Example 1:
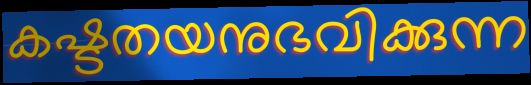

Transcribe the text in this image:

കഷ്ടതയനുഭവിക്കുന്ന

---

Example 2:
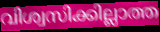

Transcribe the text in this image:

വിശ്വസിക്കില്ലാത്ത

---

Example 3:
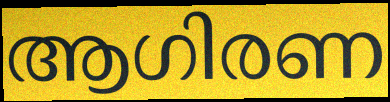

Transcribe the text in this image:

ആഗിരണ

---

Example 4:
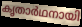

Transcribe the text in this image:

കൃതാർഥനായി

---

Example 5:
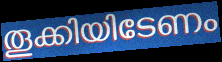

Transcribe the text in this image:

തൂക്കിയിടേണം